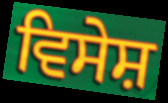
ਵਿਸੇਸ਼